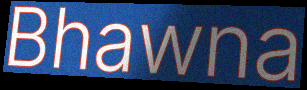
Bhawna